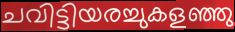
ചവിട്ടിയരച്ചുകളഞ്ഞു